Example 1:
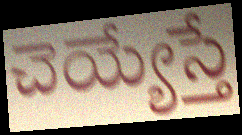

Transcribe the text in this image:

చెయ్యేస్తే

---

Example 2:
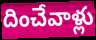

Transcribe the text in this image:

దించేవాళ్లు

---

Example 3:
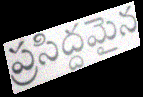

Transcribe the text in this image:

ప్రసిద్దమైన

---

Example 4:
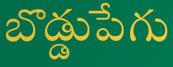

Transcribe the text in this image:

బొడ్డుపేగు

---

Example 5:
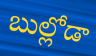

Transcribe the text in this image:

బుల్లోడా